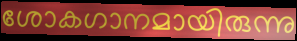
ശോകഗാനമായിരുന്നു